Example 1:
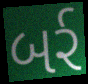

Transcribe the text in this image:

બર્ર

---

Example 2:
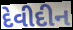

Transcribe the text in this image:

દેવીદીન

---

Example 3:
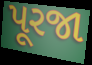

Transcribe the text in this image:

પૂરજા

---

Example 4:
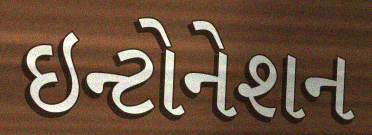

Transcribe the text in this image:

ઇન્ટોનેશન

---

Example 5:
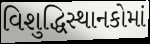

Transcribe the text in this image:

વિશુદ્ધિસ્થાનકોમાં